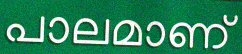
പാലമാണ്